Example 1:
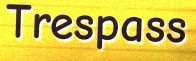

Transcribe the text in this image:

Trespass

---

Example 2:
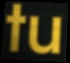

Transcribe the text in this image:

tu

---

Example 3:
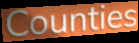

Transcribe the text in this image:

Counties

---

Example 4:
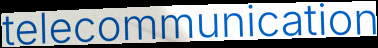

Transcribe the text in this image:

telecommunication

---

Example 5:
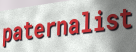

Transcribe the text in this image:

paternalist